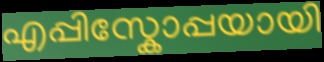
എപ്പിസ്കോപ്പയായി